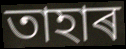
তাহাৰ